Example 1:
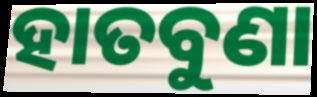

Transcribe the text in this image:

ହାତବୁଣା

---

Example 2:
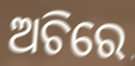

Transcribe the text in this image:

ଅଚିରେ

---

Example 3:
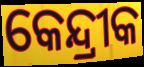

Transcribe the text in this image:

କେନ୍ଦ୍ରୀକ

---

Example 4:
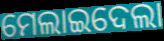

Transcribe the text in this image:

ମେଲାଇଦେଲା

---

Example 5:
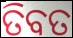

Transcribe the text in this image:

ତିବତ